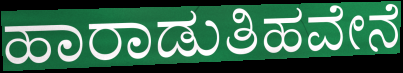
ಹಾರಾಡುತಿಹವೇನೆ